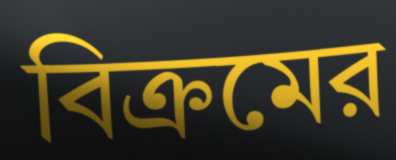
বিক্রমের